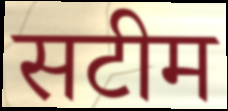
सटीम